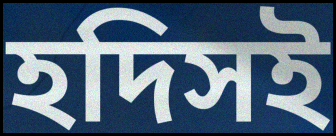
হদিসই